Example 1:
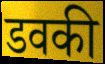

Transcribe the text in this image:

डवकी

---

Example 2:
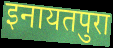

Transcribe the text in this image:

इनायतपुरा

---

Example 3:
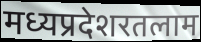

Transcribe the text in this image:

मध्यप्रदेशरतलाम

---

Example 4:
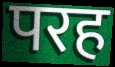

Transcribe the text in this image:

परह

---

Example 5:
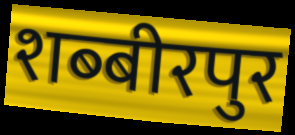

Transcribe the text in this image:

शब्‍बीरपुर